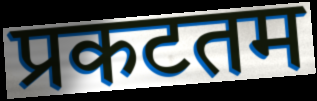
प्रकटतम